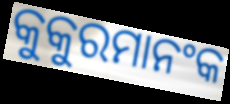
କୁକୁରମାନଂକ